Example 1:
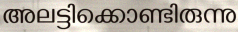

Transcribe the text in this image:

അലട്ടിക്കൊണ്ടിരുന്നു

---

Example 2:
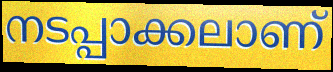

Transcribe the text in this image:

നടപ്പാക്കലാണ്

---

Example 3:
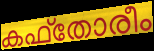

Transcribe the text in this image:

കഫ്തോരീം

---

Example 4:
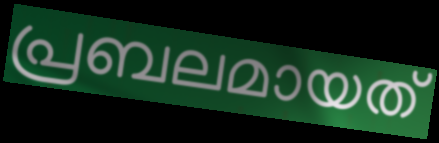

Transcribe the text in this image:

പ്രബലമായത്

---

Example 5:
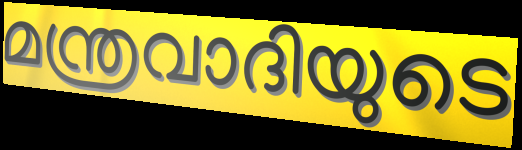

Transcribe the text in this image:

മന്ത്രവാദിയുടെ